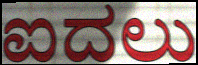
ಐದಲು